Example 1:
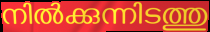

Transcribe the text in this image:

നിൽക്കുന്നിടത്തു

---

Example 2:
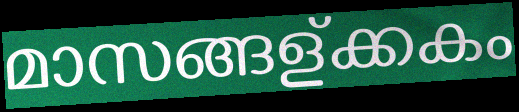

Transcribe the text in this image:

മാസങ്ങള്ക്കകം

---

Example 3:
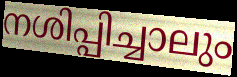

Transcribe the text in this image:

നശിപ്പിച്ചാലും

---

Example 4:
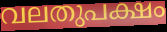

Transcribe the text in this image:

വലതുപക്ഷം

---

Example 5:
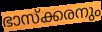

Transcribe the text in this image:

ഭാസ്ക്കരനും